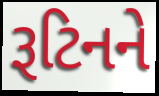
રૂટિનને